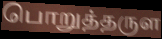
பொறுத்தருள